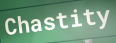
Chastity